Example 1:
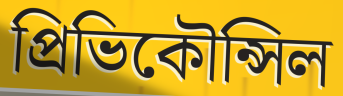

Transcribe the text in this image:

প্রিভিকৌন্সিল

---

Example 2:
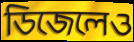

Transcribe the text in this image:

ডিজেলেও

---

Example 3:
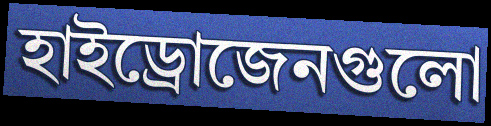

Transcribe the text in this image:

হাইড্রোজেনগুলো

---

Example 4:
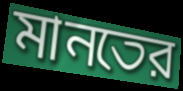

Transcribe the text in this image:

মানতের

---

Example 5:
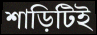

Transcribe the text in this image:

শাড়িটিই